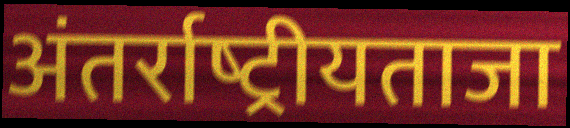
अंतर्राष्ट्रीयताजा